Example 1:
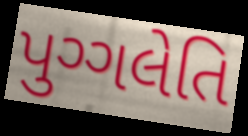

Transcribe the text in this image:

પુગ્ગલેતિ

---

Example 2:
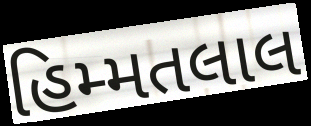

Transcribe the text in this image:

હિમ્મતલાલ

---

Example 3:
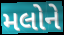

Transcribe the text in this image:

મલોને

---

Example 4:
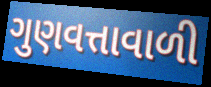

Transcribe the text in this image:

ગુણવત્તાવાળી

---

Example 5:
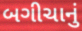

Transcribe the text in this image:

બગીચાનું